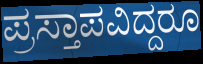
ಪ್ರಸ್ತಾಪವಿದ್ದರೂ